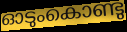
ഓടുംകൊണ്ടു